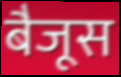
बैजूस